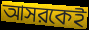
আসরকেই